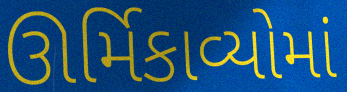
ઊર્મિકાવ્યોમાં